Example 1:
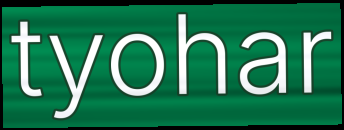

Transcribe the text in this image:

tyohar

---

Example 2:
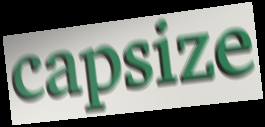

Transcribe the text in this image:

capsize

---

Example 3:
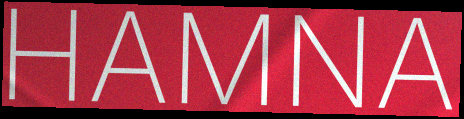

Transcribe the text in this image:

HAMNA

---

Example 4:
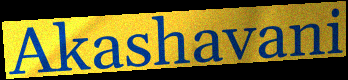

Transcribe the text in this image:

Akashavani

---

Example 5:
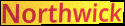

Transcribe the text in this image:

Northwick